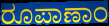
ರೂಪಾಣಾಂ